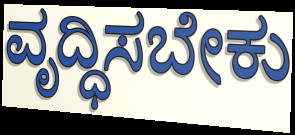
ವೃದ್ಧಿಸಬೇಕು